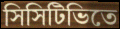
সিসিটিভিতে